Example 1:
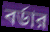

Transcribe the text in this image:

বর্ডার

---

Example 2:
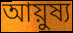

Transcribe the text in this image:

আয়ুষ্য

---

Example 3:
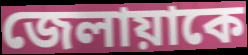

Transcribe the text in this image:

জেলায়াকে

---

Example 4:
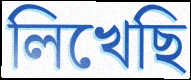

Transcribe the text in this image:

লিখেছি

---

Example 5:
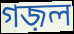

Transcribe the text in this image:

গজ়ল